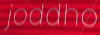
joddho